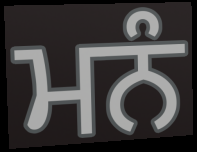
ਮਨੰ